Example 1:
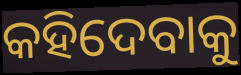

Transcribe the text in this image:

କହିଦେବାକୁ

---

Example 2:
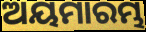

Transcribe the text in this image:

ଅୟମାରମ୍ଭ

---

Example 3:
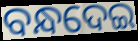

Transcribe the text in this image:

ବନ୍ଧଦେଇ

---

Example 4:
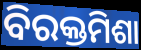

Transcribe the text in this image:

ବିରକ୍ତମିଶା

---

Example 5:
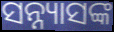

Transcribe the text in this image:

ସନ୍ନ୍ୟାସଙ୍କ